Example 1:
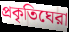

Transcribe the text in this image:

প্রকৃতিঘেরা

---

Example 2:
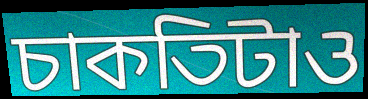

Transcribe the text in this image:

চাকতিটাও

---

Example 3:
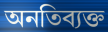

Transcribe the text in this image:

অনতিব্যক্ত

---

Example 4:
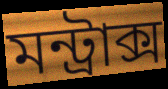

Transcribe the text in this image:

মন্ট্রাক্স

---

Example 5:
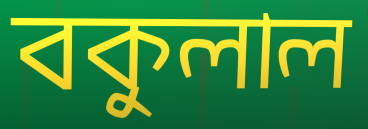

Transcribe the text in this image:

বকুলাল